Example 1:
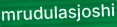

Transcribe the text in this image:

mrudulasjoshi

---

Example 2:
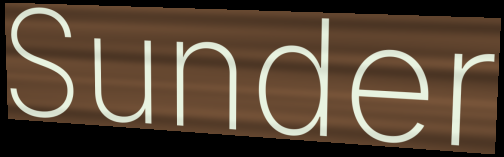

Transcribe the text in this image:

Sunder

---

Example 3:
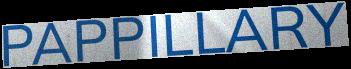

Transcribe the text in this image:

PAPPILLARY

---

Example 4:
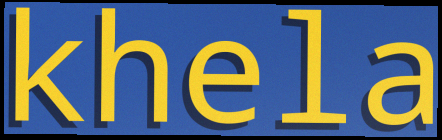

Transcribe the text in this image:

khela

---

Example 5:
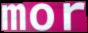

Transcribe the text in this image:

mor